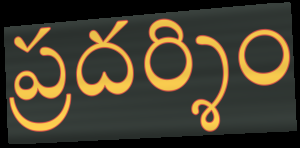
ప్రదర్శిం